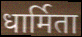
धार्मिता